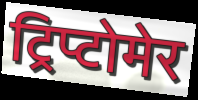
ट्रिप्टोमेर